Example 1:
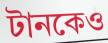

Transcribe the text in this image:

টানকেও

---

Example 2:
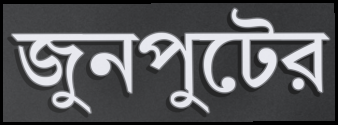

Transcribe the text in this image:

জুনপুটের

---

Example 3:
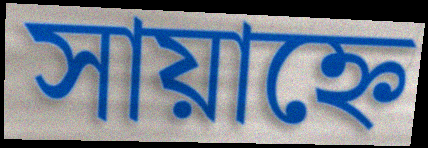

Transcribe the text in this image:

সায়াহ্নে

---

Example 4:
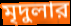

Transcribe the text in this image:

মৃদুলার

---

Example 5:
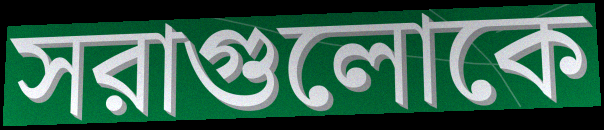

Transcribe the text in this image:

সরাগুলোকে